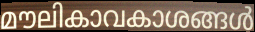
മൗലികാവകാശങ്ങൾ